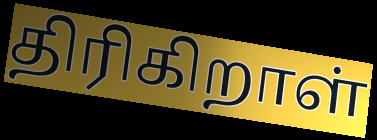
திரிகிறாள்